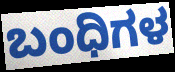
ಬಂಧಿಗಳ